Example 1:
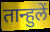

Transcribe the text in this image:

तान्हुलें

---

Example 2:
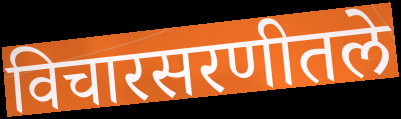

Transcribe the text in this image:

विचारसरणीतले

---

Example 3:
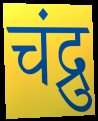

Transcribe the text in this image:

चंद्रु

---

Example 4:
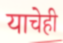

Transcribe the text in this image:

याचेही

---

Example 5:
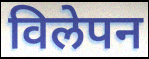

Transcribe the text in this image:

विलेपन